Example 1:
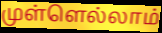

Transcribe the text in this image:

முள்ளெல்லாம்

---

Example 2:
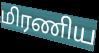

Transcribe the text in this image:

மிரணிய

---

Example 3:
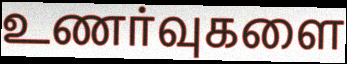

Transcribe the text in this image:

உணர்வுகளை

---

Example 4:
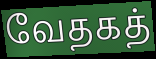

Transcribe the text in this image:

வேதகத்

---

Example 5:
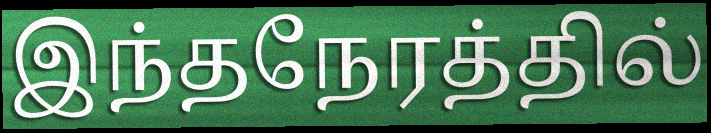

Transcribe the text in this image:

இந்தநேரத்தில்